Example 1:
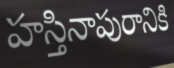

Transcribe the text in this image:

హస్తినాపురానికి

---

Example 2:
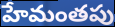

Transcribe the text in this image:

హేమంతపు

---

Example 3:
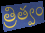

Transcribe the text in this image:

త్రిత్వం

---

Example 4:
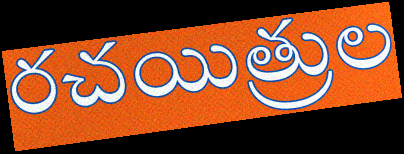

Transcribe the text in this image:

రచయిత్రుల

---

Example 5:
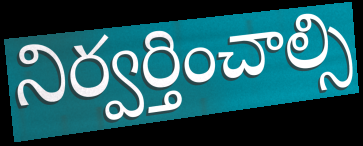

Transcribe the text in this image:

నిర్వర్తించాల్సి